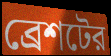
ব্রেশটের